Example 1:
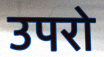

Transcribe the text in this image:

उपरो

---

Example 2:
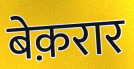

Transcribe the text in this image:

बेक़रार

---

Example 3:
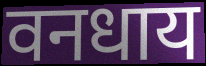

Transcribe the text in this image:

वनधाय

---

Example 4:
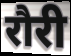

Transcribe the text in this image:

रौरी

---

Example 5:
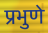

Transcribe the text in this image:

प्रभुणे